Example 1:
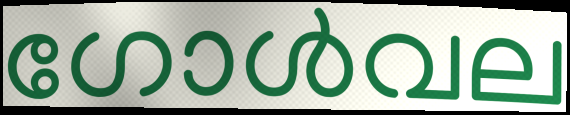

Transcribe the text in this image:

ഗോൾവല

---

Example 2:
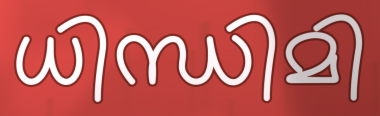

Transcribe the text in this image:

ധിന്ധിമി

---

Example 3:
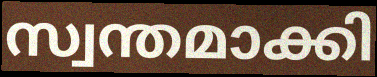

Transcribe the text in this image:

സ്വന്തമാക്കി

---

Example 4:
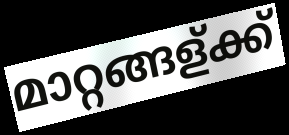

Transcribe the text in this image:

മാറ്റങ്ങള്ക്ക്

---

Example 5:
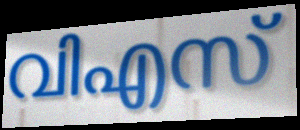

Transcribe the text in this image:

വിഎസ്